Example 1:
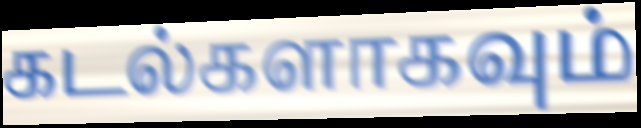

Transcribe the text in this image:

கடல்களாகவும்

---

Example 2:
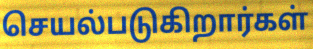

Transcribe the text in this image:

செயல்படுகிறார்கள்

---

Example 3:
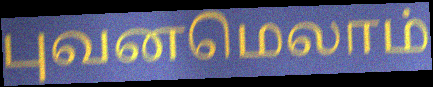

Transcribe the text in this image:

புவனமெலாம்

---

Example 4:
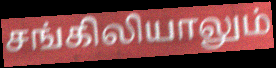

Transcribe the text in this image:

சங்கிலியாலும்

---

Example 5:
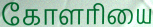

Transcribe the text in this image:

கோளரியை